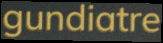
gundiatre